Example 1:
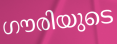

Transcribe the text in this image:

ഗൗരിയുടെ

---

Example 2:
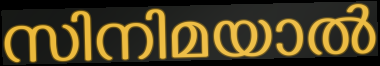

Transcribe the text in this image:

സിനിമയാൽ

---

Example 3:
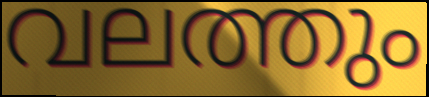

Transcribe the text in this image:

വലത്തും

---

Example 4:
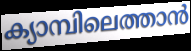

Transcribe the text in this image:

ക്യാമ്പിലെത്താൻ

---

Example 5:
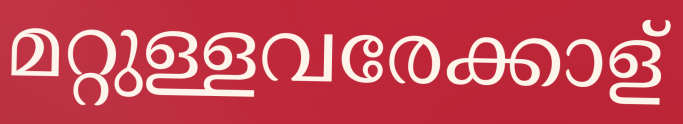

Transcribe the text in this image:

മറ്റുള്ളവരേക്കാള്